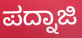
ಪದ್ನಾಜಿ